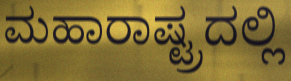
ಮಹಾರಾಷ್ಟ್ರದಲ್ಲಿ